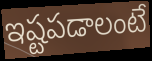
ఇష్టపడాలంటే